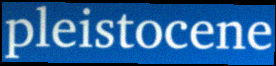
pleistocene